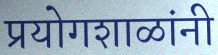
प्रयोगशाळांनी